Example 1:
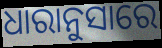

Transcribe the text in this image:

ଧାରାନୁସାରେ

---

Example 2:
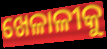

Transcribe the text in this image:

ଖେଳାଳୀକୁ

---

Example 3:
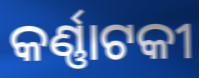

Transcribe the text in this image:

କର୍ଣ୍ଣାଟକୀ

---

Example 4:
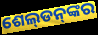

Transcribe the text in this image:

ଶେଲ୍‌ଡନ୍‌ଙ୍କର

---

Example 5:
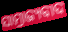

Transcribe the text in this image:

ସାମ୍ରାଜ୍ୟବାଦ